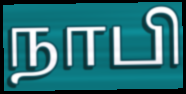
நாபி